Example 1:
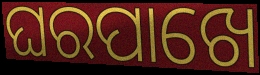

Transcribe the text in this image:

ଘରପାଖେ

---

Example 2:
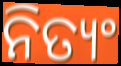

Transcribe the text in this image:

ନିତ୍ୟଂ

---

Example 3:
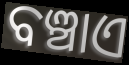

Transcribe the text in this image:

ବଞ୍ଚାଏ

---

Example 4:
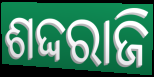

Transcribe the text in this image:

ଶଦ୍ଦରାଜି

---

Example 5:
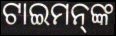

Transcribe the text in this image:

ଟାଇମନ୍‌ଙ୍କ